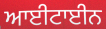
ਆਈਟਾਈਨ